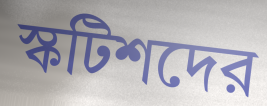
স্কটিশদের